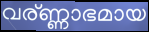
വര്ണ്ണാഭമായ